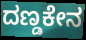
ದಣ್ಡಕೇನ